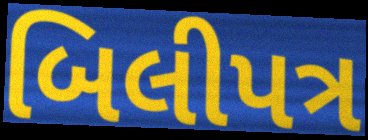
બિલીપત્ર